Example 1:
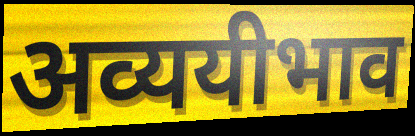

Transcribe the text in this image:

अव्ययीभाव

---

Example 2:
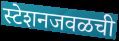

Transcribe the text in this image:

स्टेशनजवळची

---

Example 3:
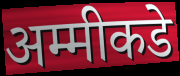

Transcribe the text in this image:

अम्मीकडे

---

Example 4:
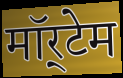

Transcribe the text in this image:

मॉर्टेम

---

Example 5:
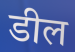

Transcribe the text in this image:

डील